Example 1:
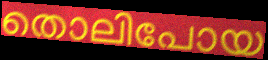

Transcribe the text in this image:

തൊലിപോയ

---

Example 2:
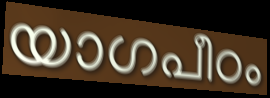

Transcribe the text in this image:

യാഗപീഠം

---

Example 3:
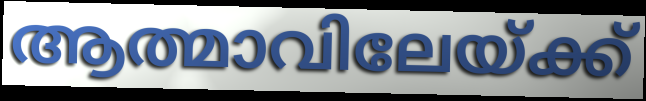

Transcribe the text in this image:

ആത്മാവിലേയ്ക്ക്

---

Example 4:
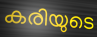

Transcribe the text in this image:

കരിയുടെ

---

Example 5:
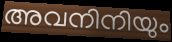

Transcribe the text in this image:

അവനിനിയും